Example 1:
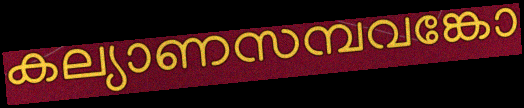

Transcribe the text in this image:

കല്യാണസമ്പവങ്കോ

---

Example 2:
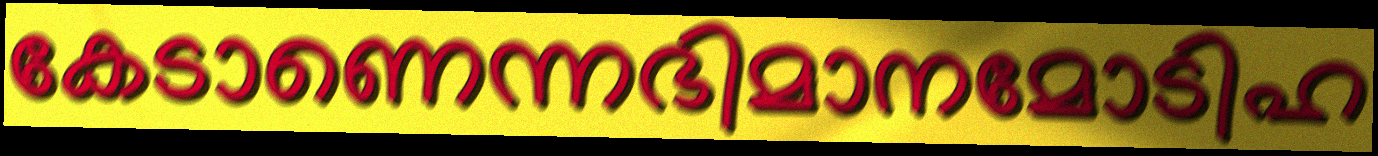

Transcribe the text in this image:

കേടാണെന്നഭിമാനമോടിഹ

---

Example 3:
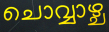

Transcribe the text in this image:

ചൊവ്വാഴ്ച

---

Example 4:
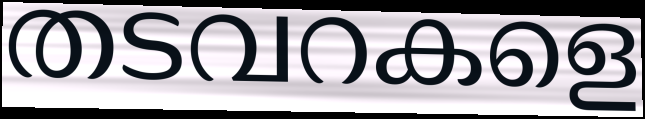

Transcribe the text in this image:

തടവറകളെ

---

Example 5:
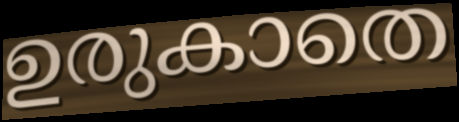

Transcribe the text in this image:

ഉരുകാതെ